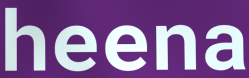
heena